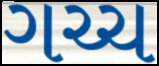
ગચ્ચ